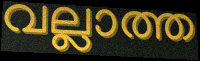
വല്ലാത്ത